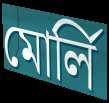
মোর্লি